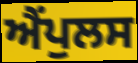
ਐਂਪੁਲਸ